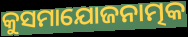
କୁସମାଯୋଜନାତ୍ମକ